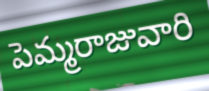
పెమ్మరాజువారి